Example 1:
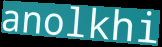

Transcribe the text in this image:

anolkhi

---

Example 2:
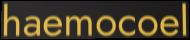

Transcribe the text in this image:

haemocoel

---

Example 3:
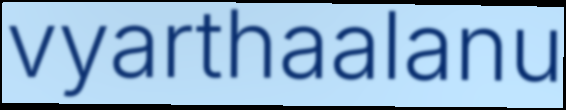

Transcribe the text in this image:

vyarthaalanu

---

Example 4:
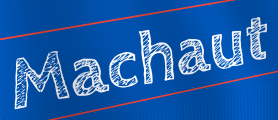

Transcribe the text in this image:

Machaut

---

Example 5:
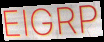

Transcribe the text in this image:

EIGRP